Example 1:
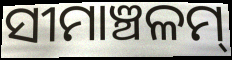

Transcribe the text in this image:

ସୀମାଞ୍ଚଳମ୍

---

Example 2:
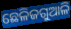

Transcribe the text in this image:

ଛେଳିଜଗୁଆଳି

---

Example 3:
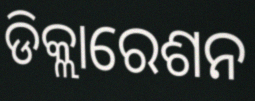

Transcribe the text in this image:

ଡିକ୍ଲାରେଶନ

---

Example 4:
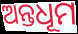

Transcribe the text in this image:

ଅନ୍ତଧୂମ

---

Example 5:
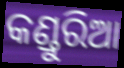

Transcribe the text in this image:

କଣ୍ଡୁରିଆ